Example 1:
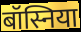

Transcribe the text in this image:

बॉस्निया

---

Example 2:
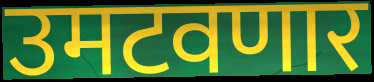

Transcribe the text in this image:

उमटवणार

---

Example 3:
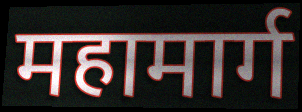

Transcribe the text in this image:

महामार्ग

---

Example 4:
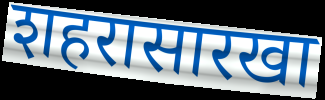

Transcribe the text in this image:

शहरासारखा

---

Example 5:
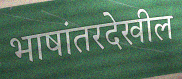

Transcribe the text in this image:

भाषांतरदेखील